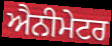
ਐਨੀਮੇਟਰ